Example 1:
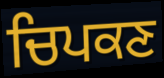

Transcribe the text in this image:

ਚਿਪਕਣ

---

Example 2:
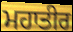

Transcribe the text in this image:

ਮਹਾਤੀਰ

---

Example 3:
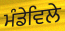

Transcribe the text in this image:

ਮੰਡੇਵਿਲੇ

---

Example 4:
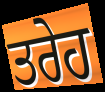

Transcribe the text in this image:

ਤਰੇਹ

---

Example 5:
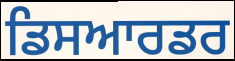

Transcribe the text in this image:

ਡਿਸਆਰਡਰ